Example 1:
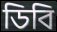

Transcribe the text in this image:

ডিবি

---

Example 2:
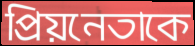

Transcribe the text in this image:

প্রিয়নেতাকে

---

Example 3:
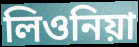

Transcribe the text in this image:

লিওনিয়া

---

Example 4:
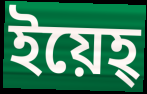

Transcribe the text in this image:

ইয়েহ্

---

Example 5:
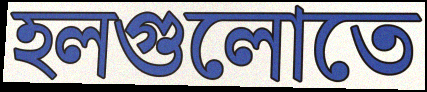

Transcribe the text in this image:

হলগুলোতে